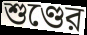
শুণ্ডের